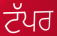
ਟੱਪਰ